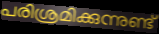
പരിശ്രമിക്കുന്നുണ്ട്